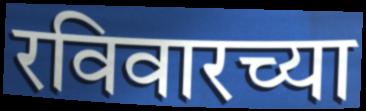
रविवारच्या